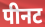
पीनट